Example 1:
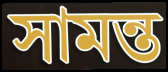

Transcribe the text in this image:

সামন্ত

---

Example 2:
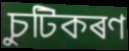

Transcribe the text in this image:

চুটিকৰণ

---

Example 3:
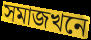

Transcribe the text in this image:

সমাজখনে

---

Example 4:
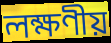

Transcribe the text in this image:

লক্ষণীয়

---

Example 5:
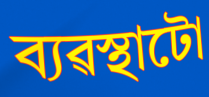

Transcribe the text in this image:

ব্যৱস্থাটো